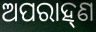
ଅପରାହ୍‍ଣ